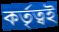
কর্তৃত্বই